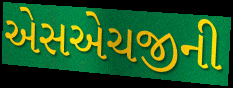
એસએચજીની